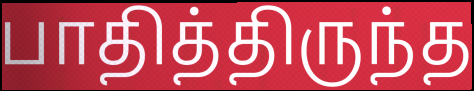
பாதித்திருந்த